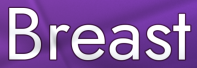
Breast